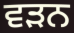
ਵਡ਼ਨ